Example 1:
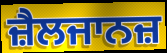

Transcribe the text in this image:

ਜ਼ੈਲਜਾਨਜ਼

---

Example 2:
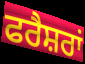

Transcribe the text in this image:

ਫਰੈਸ਼ਰਾਂ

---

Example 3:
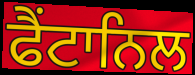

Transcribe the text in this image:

ਫੈਂਟਾਨਿਲ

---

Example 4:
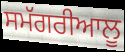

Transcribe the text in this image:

ਸਮੱਗਰੀਆਲੂ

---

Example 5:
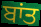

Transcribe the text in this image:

ਬਾਂਤ